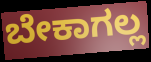
ಬೇಕಾಗಲ್ಲ